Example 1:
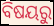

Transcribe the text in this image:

ବିଷୟରୁ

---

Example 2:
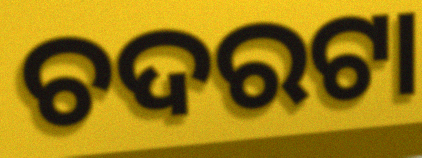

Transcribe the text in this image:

ଚଦରଟା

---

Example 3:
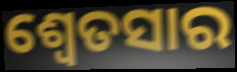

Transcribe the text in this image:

ଶ୍ଵେତସାର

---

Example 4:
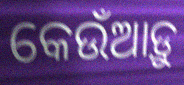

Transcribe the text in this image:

କେଉଁଆଡ଼ୁ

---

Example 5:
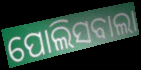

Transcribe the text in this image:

ପୋଲିସବାଲା